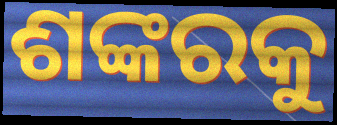
ଶଙ୍କରକୁ